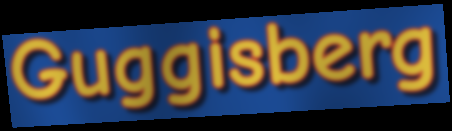
Guggisberg